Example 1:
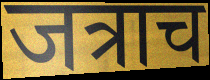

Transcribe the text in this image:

जत्राच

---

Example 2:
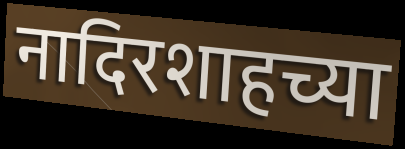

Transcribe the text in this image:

नादिरशाहच्या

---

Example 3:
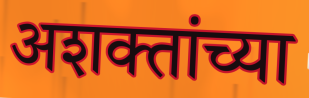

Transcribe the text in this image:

अशक्तांच्या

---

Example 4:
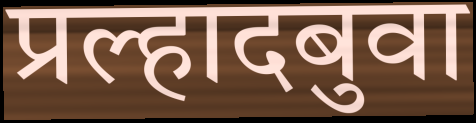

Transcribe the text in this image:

प्रल्हादबुवा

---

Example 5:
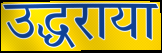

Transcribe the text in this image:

उद्धराया